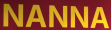
NANNA